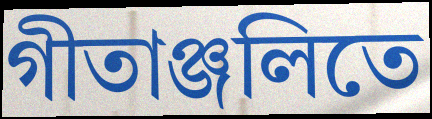
গীতাঞ্জলিতে